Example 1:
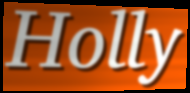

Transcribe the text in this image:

Holly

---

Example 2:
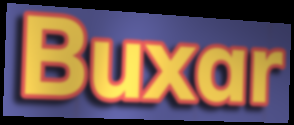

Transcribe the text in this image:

Buxar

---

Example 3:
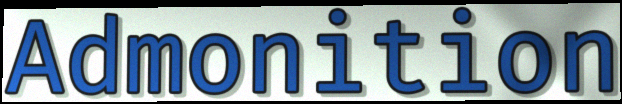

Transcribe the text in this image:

Admonition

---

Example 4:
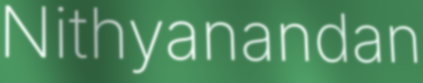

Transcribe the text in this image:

Nithyanandan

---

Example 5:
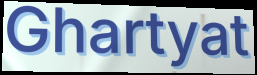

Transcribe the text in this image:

Ghartyat